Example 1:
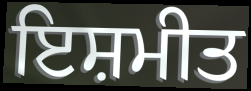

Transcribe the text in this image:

ਇਸ਼ਮੀਤ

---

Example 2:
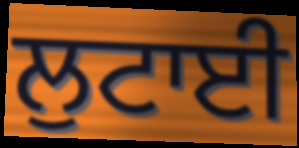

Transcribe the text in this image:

ਲੁਟਾਈ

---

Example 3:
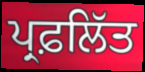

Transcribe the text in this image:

ਪ੍ਰਫ਼ਲਿੱਤ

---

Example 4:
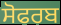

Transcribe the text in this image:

ਸੋਫਰਬ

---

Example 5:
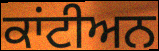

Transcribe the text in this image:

ਕਾਂਟੀਅਨ